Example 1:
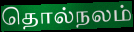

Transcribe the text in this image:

தொல்நலம்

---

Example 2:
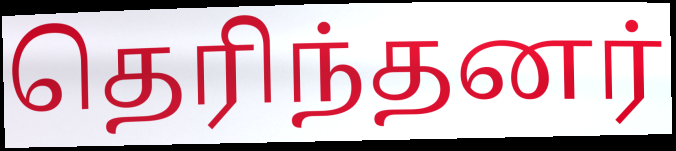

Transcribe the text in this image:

தெரிந்தனர்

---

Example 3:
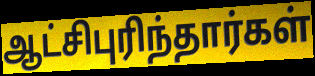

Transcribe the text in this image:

ஆட்சிபுரிந்தார்கள்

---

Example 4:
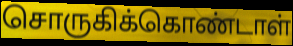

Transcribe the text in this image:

சொருகிக்கொண்டாள்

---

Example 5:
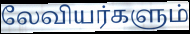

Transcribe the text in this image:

லேவியர்களும்